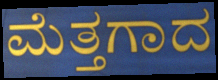
ಮೆತ್ತಗಾದ